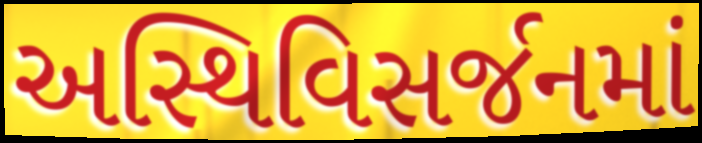
અસ્થિવિસર્જનમાં